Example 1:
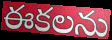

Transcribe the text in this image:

ఈకలను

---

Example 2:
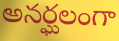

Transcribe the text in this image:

అనర్ఘలంగా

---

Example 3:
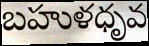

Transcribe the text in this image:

బహుళధృవ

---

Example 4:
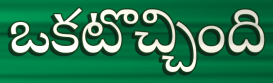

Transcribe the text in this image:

ఒకటొచ్చింది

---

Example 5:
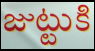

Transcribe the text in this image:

జుట్టుకి